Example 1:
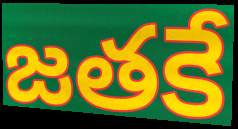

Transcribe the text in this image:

జతకే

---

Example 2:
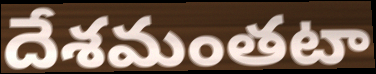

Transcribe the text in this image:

దేశమంతటా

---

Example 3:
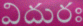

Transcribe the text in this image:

విదురః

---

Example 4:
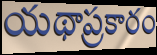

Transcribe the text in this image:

యథాప్రకారం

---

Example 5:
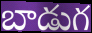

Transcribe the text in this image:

బాడుగ